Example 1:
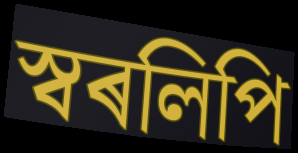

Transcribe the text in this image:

স্বৰলিপি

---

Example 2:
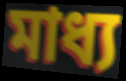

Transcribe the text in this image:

মাধ্য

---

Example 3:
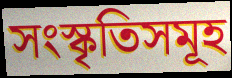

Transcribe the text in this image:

সংস্কৃতিসমূহ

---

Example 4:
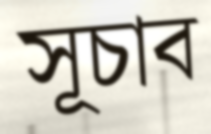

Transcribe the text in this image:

সূচাব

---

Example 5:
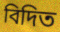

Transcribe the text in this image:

বিদিত